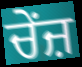
ਚੇਂਜ਼